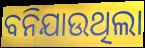
ବନିଯାଉଥିଲା